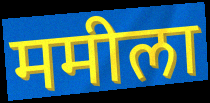
ममीला